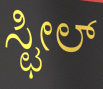
ಸ್ಟೀಲ್